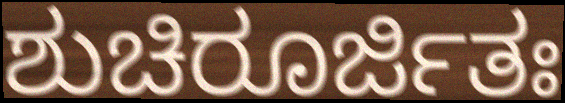
ಶುಚಿರೂರ್ಜಿತಃ